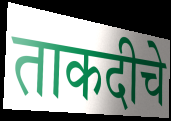
ताकदीचे